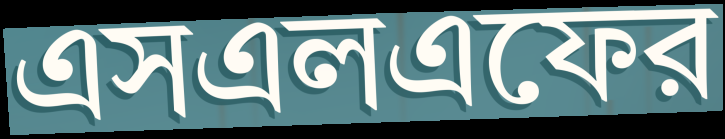
এসএলএফের